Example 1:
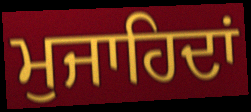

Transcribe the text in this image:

ਮੁਜਾਹਿਦਾਂ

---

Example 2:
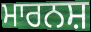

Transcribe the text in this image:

ਮਾਰਨਸ਼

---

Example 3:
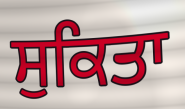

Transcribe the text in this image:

ਸੁਕਿਤਾ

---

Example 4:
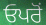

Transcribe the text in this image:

ਓਪਰੋਂ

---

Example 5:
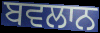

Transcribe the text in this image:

ਬਵਲਾਨ